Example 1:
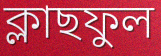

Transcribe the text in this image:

ক্লাছফুল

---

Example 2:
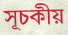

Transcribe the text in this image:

সূচকীয়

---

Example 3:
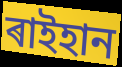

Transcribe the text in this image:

ৰাইহান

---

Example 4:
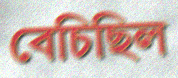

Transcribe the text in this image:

বেচিছিল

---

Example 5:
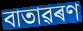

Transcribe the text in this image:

বাতাৱৰণ